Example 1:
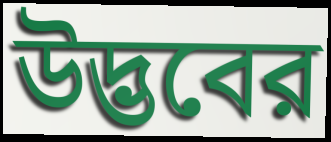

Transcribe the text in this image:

উদ্ভবের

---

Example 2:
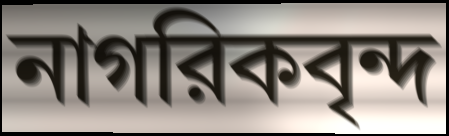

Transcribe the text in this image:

নাগরিকবৃন্দ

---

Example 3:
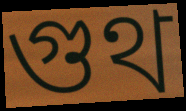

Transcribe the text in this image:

গুথ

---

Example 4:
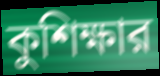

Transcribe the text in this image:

কুশিক্ষার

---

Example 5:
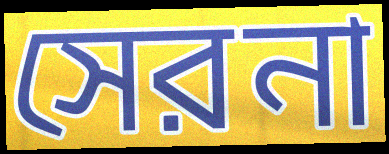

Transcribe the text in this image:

সেরনা